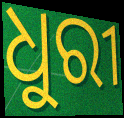
ଧୁରୀ